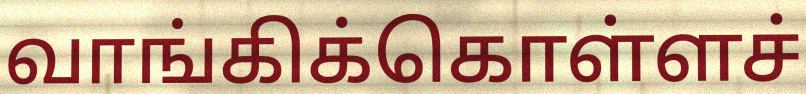
வாங்கிக்கொள்ளச்